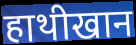
हाथीखान